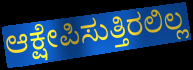
ಆಕ್ಷೇಪಿಸುತ್ತಿರಲಿಲ್ಲ